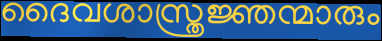
ദൈവശാസ്ത്രജ്ഞന്മാരും